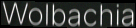
Wolbachia